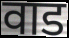
वाड